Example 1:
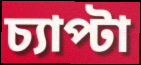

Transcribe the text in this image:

চ্যাপ্টা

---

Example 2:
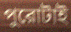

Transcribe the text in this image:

পুরোটাই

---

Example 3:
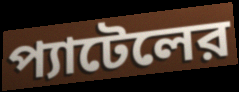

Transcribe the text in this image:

প্যাটেলের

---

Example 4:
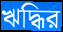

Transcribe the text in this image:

ঋদ্ধির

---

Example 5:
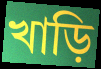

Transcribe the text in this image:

খাড়ি